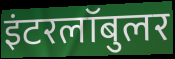
इंटरलॉबुलर